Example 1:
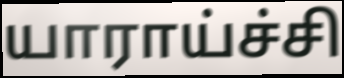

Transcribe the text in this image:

யாராய்ச்சி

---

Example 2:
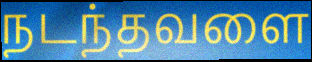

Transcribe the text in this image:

நடந்தவளை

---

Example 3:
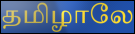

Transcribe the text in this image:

தமிழாலே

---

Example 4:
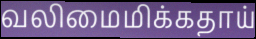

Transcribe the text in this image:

வலிமைமிக்கதாய்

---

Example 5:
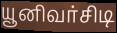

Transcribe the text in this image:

யூனிவர்சிடி